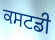
ਕਸਟਡੀ